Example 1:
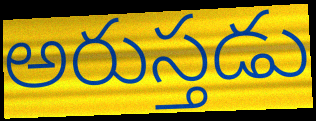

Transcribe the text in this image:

అరుస్తడు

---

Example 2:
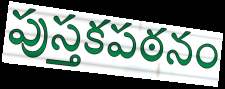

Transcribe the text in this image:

పుస్తకపఠనం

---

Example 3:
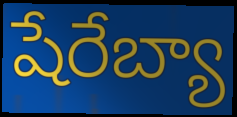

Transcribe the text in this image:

షేరేబ్యా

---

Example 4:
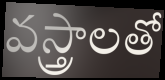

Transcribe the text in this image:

వస్త్రాలతో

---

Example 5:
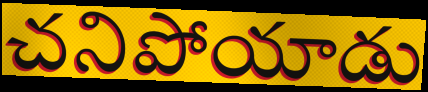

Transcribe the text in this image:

చనిపోయాడు